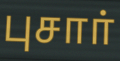
புசார்